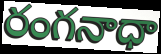
రంగనాధా